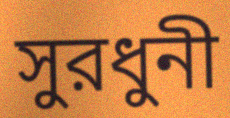
সুরধুনী